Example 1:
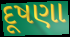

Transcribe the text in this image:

દૂષણા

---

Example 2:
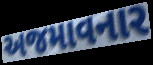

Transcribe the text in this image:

અજમાવનાર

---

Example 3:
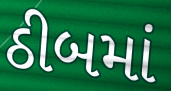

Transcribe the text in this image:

ઠીબમાં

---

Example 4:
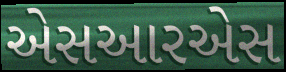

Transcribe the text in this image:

એસઆરએસ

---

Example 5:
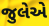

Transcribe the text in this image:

જુલેએ